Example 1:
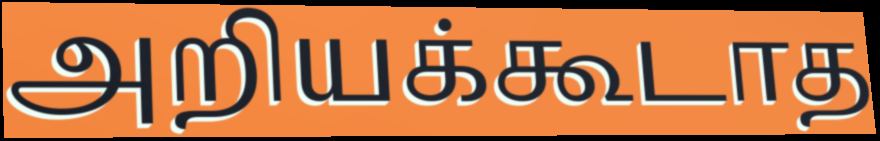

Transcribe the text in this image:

அறியக்கூடாத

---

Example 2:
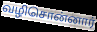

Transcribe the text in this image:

வழிசொன்னார்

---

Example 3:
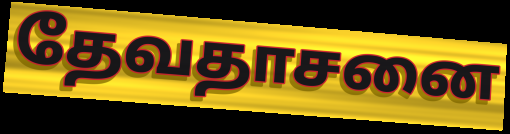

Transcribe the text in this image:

தேவதாசனை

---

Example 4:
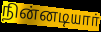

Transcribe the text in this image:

நின்னடியார்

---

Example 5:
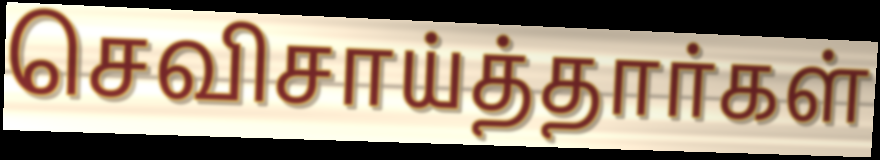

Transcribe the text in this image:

செவிசாய்த்தார்கள்